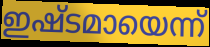
ഇഷ്ടമായെന്ന്